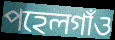
পহেলগাঁও